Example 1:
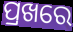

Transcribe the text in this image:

ପ୍ରଖରେ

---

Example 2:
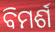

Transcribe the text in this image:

ବିମର୍ଶ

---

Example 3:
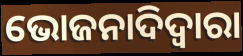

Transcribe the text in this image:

ଭୋଜନାଦିଦ୍ୱାରା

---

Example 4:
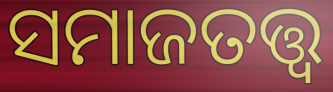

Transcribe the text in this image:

ସମାଜତତ୍ତ୍ୱ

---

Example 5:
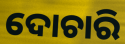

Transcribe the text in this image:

ଦୋଚାରି